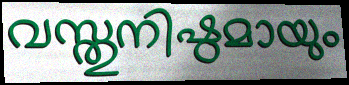
വസ്തുനിഷ്ഠമായും